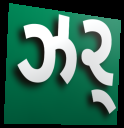
ઝર્